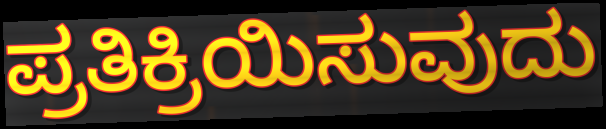
ಪ್ರತಿಕ್ರಿಯಿಸುವುದು